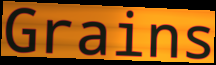
Grains